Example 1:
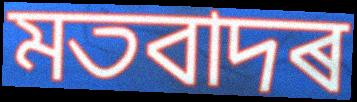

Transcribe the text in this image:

মতবাদৰ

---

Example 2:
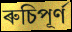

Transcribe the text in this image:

ৰুচিপূৰ্ণ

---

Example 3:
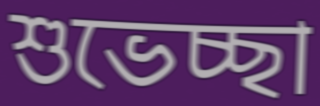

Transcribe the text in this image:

শুভেচ্ছা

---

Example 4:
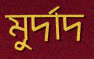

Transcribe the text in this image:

মুৰ্দাদ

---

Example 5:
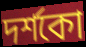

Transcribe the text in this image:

দৰ্শকো